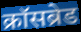
क्रॉसब्रेड